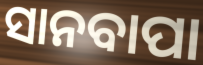
ସାନବାପା